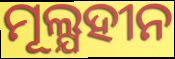
ମୂଲ୍ଯହୀନ